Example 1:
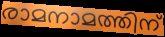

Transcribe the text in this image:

രാമനാമത്തിന്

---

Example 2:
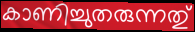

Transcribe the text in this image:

കാണിച്ചുതരുന്നതു്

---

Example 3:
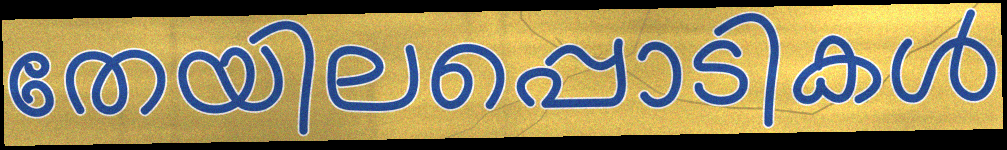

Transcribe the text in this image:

തേയിലപ്പൊടികൾ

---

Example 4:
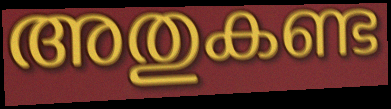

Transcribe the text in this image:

അതുകണ്ട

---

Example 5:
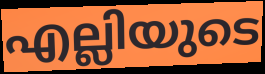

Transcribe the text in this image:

എല്ലിയുടെ